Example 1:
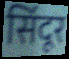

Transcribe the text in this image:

सिंदूर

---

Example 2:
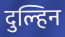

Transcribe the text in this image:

दुल्हिन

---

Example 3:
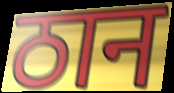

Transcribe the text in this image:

ठान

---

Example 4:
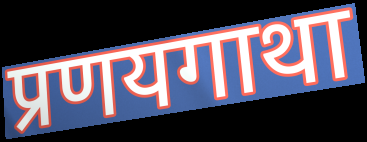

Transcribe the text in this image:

प्रणयगाथा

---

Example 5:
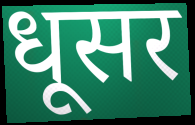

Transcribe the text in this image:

धूसर